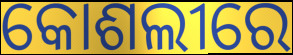
କୋଶଲୀରେ